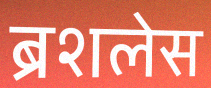
ब्रशलेस